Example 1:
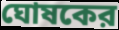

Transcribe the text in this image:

ঘোষকের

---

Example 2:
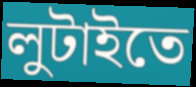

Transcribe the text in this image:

লুটাইতে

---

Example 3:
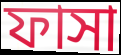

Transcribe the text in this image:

ফাসা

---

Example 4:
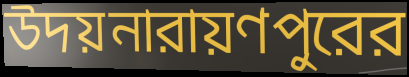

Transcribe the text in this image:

উদয়নারায়ণপুরের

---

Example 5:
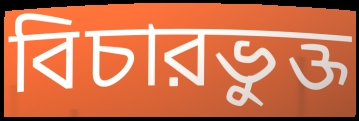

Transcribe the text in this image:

বিচারভুক্ত